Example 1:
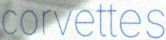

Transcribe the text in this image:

corvettes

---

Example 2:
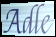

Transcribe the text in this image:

Adle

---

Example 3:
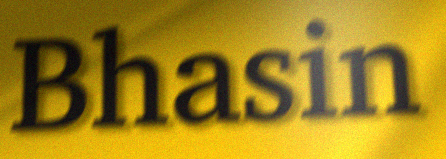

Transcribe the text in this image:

Bhasin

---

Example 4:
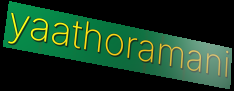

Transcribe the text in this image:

yaathoramani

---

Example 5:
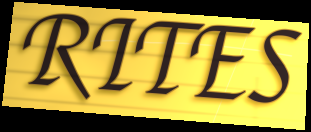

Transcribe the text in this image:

RITES